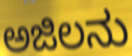
ಅಜಿಲನು